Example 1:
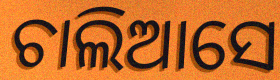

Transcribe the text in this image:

ଚାଲିଆସେ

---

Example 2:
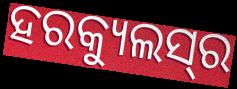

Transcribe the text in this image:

ହରକ୍ୟୁଲସ୍‍ର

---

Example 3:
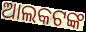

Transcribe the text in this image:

ଆଲକଟଙ୍କ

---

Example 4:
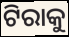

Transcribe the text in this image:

ଟିରାକୁ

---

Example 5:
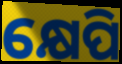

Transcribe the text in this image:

କ୍ଷେପି